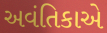
અવંતિકાએ